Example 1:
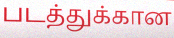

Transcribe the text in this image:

படத்துக்கான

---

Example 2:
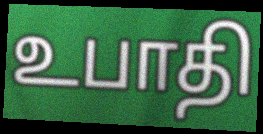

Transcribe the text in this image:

உபாதி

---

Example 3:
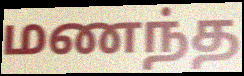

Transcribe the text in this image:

மணந்த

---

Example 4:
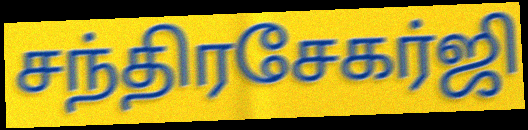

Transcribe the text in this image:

சந்திரசேகர்ஜி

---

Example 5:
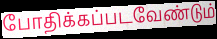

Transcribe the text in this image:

போதிக்கப்படவேண்டும்